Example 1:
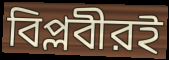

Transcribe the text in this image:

বিপ্লবীরই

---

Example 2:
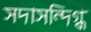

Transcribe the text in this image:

সদাসন্দিগ্ধ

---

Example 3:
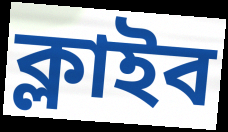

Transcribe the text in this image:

ক্লাইব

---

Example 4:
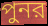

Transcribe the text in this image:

পুনর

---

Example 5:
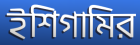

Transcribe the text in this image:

ইশিগামির